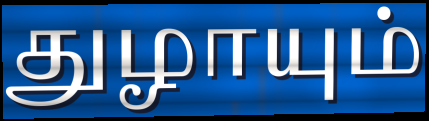
துழாயும்